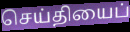
செய்தியைப்